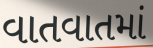
વાતવાતમાં